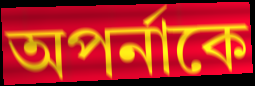
অপর্নাকে